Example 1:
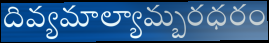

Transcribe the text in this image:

దివ్యమాల్యామ్బరధరం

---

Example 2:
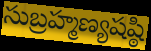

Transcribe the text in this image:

సుబ్రహ్మణ్యషష్ఠి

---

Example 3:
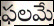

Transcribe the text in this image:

ఫలమే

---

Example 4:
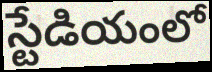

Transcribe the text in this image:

స్టేడియంలో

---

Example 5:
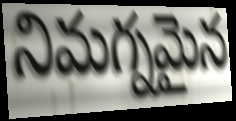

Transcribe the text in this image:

నిమగ్నమైన